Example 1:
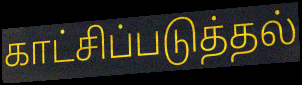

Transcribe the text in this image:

காட்சிப்படுத்தல்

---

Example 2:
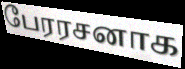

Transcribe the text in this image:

பேரரசனாக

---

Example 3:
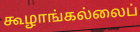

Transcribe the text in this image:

கூழாங்கல்லைப்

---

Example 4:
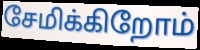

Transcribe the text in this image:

சேமிக்கிறோம்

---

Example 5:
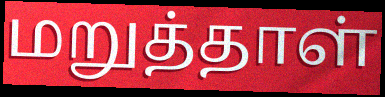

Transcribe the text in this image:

மறுத்தாள்